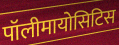
पॉलीमायोसिटिस